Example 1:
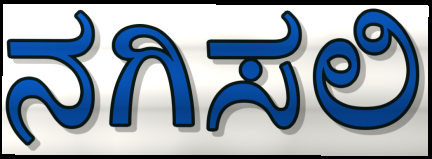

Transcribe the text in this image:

ನಗಿಸಲಿ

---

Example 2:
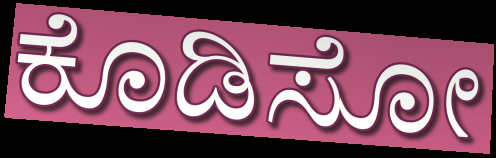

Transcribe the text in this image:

ಕೊಡಿಸೋ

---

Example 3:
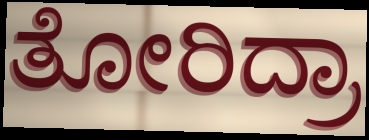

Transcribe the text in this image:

ತೋರಿದ್ರಾ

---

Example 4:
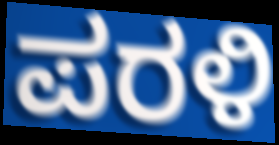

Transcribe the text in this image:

ಪರಳಿ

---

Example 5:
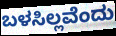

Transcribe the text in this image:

ಬಳಸಿಲ್ಲವೆಂದು